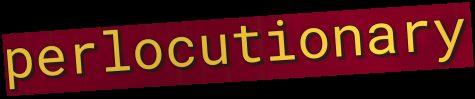
perlocutionary